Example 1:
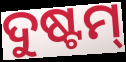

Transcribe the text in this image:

ଦୁଷ୍ଟମ୍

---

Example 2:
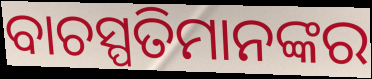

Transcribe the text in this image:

ବାଚସ୍ପତିମାନଙ୍କର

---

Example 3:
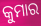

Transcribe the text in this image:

କୁମାର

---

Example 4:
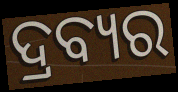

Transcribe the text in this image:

ଦ୍ରବ୍ୟର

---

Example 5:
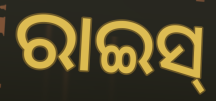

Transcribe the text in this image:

ରାଇସ୍